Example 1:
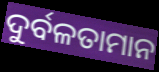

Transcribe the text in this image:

ଦୁର୍ବଳତାମାନ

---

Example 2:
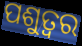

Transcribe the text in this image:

ପଶୁତ୍ୱର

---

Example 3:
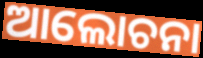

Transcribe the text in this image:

ଆଲୋଚନା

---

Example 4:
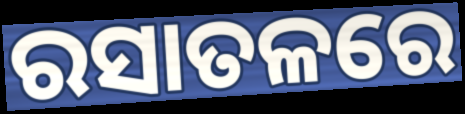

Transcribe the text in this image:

ରସାତଳରେ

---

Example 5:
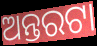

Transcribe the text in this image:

ଅନ୍ତରଟା